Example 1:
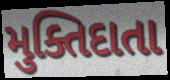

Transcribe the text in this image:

મુક્તિદાતા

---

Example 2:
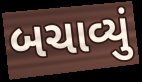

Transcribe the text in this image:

બચાવ્યું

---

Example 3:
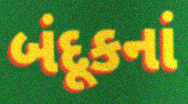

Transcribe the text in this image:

બંદૂકનાં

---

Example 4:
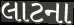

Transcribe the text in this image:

લાટના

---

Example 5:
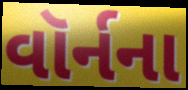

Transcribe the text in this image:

વૉર્નના